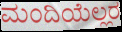
ಮಂದಿಯೆಲ್ಲರ